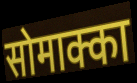
सोमाक्का